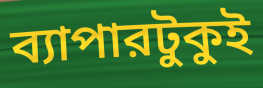
ব্যাপারটুকুই